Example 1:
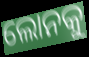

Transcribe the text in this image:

ଲୋନକୁ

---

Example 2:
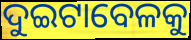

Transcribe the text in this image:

ଦୁଇଟାବେଳକୁ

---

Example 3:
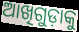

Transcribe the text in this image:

ଆଖିଗୁଡ଼ାକୁ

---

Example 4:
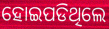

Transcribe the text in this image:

ହୋଇପଡିଥିଲେ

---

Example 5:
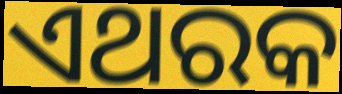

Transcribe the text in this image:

ଏଥରକ